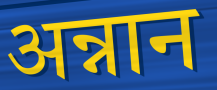
अन्नान